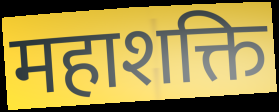
महाशक्ति